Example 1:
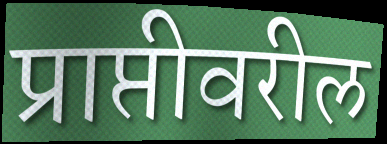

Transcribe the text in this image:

प्राप्तीवरील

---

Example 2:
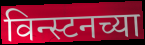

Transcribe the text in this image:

विन्स्टनच्या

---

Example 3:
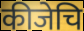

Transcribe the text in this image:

कीजेचि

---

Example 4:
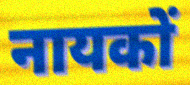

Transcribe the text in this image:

नायकों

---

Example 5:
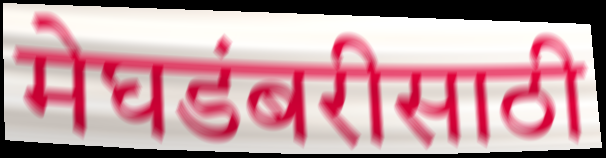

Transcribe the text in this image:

मेघडंबरीसाठी